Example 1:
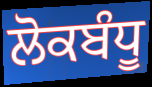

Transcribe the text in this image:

ਲੋਕਬੰਧੂ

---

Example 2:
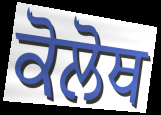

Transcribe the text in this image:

ਕੋਲੋਥ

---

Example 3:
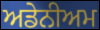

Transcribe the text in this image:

ਅਡੇਨੀਅਮ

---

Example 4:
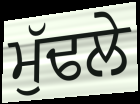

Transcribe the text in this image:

ਮੁੱਢਲੇ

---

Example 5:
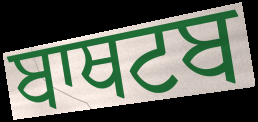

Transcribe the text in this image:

ਬਾਥਟਬ